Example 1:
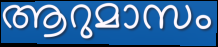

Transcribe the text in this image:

ആറുമാസം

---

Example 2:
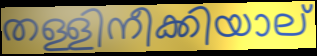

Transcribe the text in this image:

തള്ളിനീക്കിയാല്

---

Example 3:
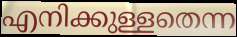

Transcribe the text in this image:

എനിക്കുള്ളതെന്ന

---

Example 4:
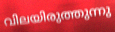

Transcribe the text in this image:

വിലയിരുത്തുന്നു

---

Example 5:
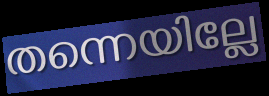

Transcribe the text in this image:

തന്നെയില്ലേ